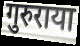
गुरुराया